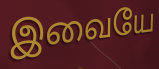
இவையே